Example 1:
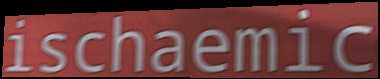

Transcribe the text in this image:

ischaemic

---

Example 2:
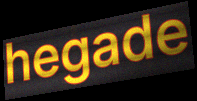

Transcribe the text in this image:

hegade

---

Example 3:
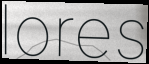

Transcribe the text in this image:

lores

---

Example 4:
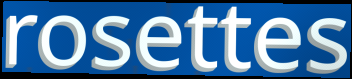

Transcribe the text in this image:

rosettes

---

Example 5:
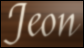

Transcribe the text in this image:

Jeon